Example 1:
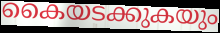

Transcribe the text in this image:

കൈയടക്കുകയും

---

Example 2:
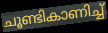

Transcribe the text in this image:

ചൂണ്ടികാണിച്ച്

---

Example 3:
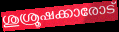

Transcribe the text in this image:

ശുശ്രൂഷക്കാരോട്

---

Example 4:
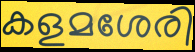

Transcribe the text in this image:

കളമശേരി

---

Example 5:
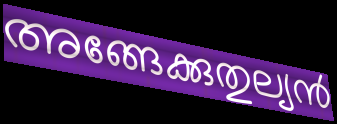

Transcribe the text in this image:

അങ്ങേക്കുതുല്യൻ